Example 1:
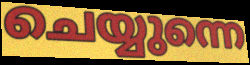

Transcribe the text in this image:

ചെയ്യുന്നെ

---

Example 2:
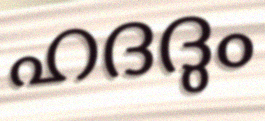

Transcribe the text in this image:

ഹദദും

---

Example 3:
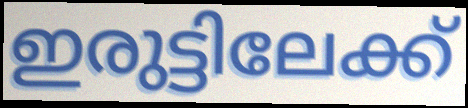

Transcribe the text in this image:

ഇരുട്ടിലേക്ക്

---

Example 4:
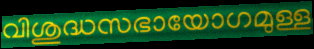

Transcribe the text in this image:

വിശുദ്ധസഭായോഗമുള്ള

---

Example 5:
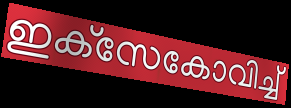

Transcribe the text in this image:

ഇക്‌സേകോവിച്ച്